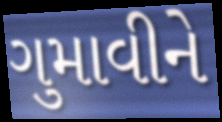
ગુમાવીને